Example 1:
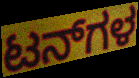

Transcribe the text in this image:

ಟನ್‌ಗಳ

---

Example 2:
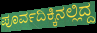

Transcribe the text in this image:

ಪೂರ್ವದಿಕ್ಕಿನಲ್ಲಿದ್ದ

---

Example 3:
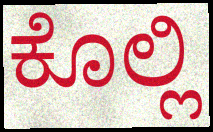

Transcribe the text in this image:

ಕೊಲ್ಲಿ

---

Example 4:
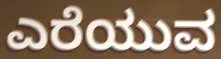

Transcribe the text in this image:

ಎರೆಯುವ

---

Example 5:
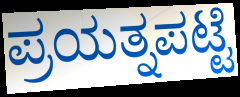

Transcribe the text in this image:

ಪ್ರಯತ್ನಪಟ್ಟೆ